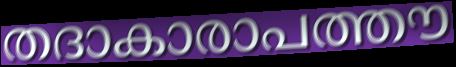
തദാകാരാപത്തൗ